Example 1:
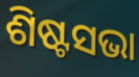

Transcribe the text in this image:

ଶିଷ୍ଟସଭା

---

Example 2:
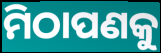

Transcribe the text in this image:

ମିଠାପଣକୁ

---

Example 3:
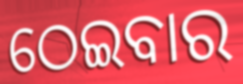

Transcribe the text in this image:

ଠେଇବାର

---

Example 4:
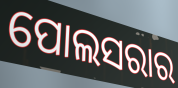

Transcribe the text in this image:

ପୋଲସରାର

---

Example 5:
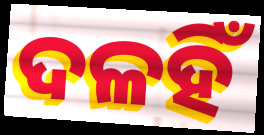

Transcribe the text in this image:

ଦଳହିଁ